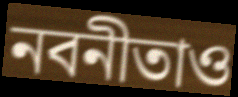
নবনীতাও